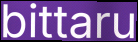
bittaru